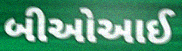
બીઓઆઈ